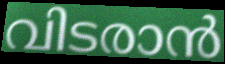
വിടരാൻ